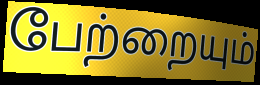
பேற்றையும்